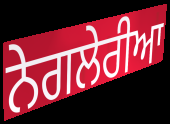
ਨੇਗਲੇਰੀਆ